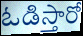
ఓడిస్తారో